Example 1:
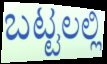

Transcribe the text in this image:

ಬಟ್ಟಲಲ್ಲಿ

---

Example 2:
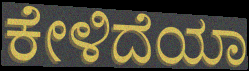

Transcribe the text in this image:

ಕೇಳಿದೆಯಾ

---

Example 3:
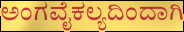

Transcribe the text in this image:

ಅಂಗವೈಕಲ್ಯದಿಂದಾಗಿ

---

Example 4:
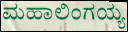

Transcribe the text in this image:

ಮಹಾಲಿಂಗಯ್ಯ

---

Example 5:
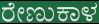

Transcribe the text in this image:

ರೇಣುಕಾಳ